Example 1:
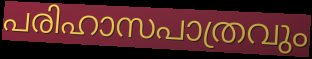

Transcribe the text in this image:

പരിഹാസപാത്രവും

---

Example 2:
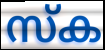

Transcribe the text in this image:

സ്ക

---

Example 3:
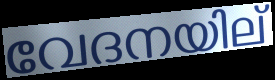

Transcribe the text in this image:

വേദനയില്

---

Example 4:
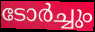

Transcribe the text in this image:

ടോർച്ചും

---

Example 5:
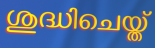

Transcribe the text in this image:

ശുദ്ധിചെയ്ത്